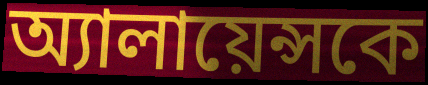
অ্যালায়েন্সকে